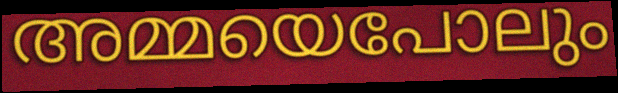
അമ്മയെപോലും